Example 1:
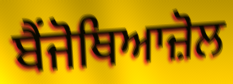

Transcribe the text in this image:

ਬੈਂਜੋਥਿਆਜ਼ੋਲ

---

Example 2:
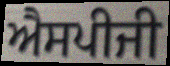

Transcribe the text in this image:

ਐਸਪੀਜੀ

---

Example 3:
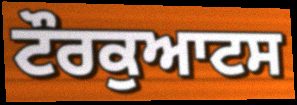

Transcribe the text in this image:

ਟੌਰਕੁਆਟਸ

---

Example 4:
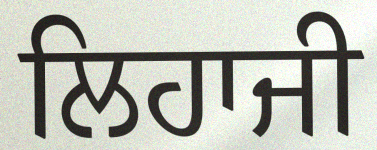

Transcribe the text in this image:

ਲਿਹਾਜੀ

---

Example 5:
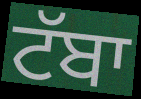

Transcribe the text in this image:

ਟੱਬਾ